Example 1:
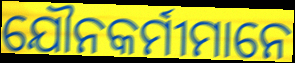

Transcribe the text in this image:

ଯୌନକର୍ମୀମାନେ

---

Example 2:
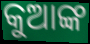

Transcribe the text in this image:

କୁଆଙ୍କ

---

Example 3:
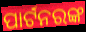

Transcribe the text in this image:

ପାର୍ଟନରଙ୍କ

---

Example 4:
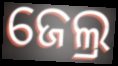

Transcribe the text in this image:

ଜେଲ୍ର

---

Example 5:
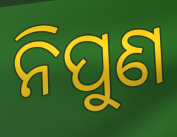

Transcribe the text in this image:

ନିପୁଣ